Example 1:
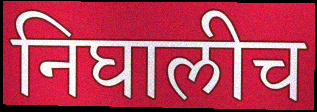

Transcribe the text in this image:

निघालीच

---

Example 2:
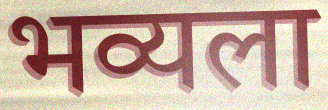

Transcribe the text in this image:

भव्यला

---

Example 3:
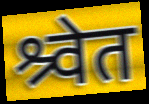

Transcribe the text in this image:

श्र्वेत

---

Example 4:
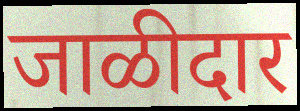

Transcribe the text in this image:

जाळीदार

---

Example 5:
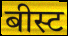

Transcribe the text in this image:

बीस्ट